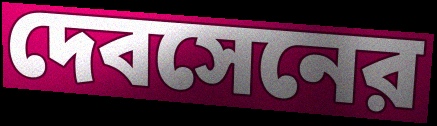
দেবসেনের